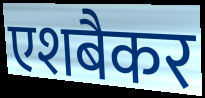
एशबैकर